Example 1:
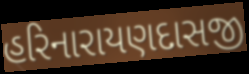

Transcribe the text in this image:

હરિનારાયણદાસજી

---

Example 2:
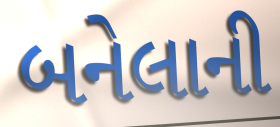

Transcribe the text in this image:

બનેલાની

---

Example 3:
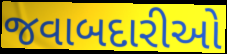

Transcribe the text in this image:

જવાબદારીઓ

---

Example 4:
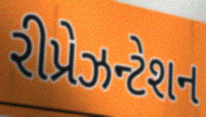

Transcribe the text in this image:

રીપ્રેઝન્ટેશન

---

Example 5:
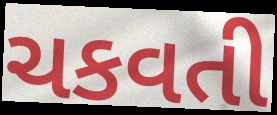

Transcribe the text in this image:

ચકવતી